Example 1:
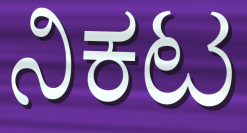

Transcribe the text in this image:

ನಿಕಟ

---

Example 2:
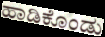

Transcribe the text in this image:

ಹಾಡಿಕೊಂಡು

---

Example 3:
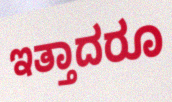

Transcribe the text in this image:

ಇತ್ತಾದರೂ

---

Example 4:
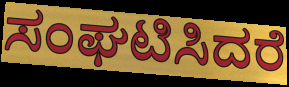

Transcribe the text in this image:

ಸಂಘಟಿಸಿದರೆ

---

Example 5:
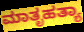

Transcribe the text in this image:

ಮಾತೃಹತ್ಯಾ